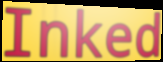
Inked